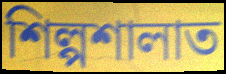
শিল্পশালাত